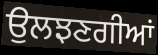
ਉਲਝਣਗੀਆਂ